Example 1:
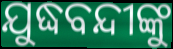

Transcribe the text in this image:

ଯୁଦ୍ଧବନ୍ଦୀଙ୍କୁ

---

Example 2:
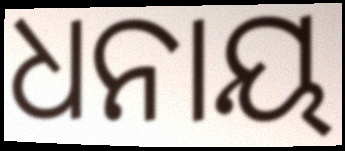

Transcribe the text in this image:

ଧନାୟ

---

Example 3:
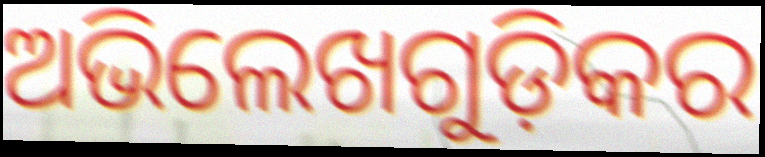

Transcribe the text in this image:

ଅଭିଲେଖଗୁଡ଼ିକର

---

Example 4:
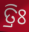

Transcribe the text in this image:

ତ୍ରିଃ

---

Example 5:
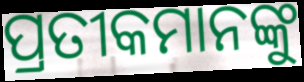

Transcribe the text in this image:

ପ୍ରତୀକମାନଙ୍କୁ